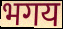
भगय